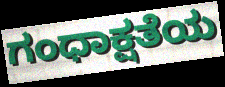
ಗಂಧಾಕ್ಷತೆಯ